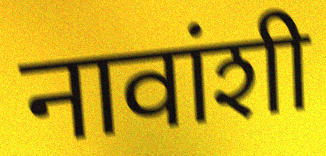
नावांशी